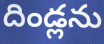
దిండ్లను